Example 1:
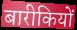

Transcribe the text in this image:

बारीकियों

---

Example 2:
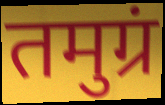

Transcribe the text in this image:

तमुग्रं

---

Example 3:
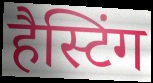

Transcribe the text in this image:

हैस्टिंग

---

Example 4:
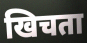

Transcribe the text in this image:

खिचता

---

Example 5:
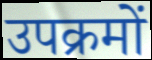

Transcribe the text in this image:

उपक्रमों